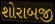
શોરાબજી